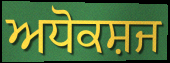
ਅਧੋਕਸ਼ਜ